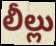
లీల్లు